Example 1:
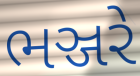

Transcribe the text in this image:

ભઞ્જરે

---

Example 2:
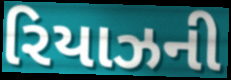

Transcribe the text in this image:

રિયાઝની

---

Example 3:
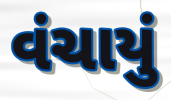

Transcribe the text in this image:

વંચાયું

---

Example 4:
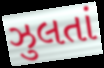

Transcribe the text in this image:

ઝુલતાં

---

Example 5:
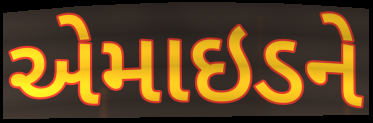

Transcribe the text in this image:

એમાઇડને